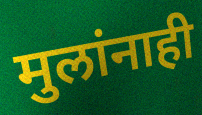
मुलांनाही